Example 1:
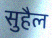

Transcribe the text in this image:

सुहैल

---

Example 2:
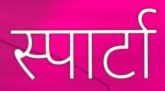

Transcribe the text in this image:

स्पार्टा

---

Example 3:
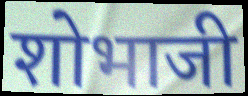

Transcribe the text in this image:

शोभाजी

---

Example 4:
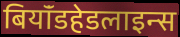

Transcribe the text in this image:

बियॉंडहेडलाइन्स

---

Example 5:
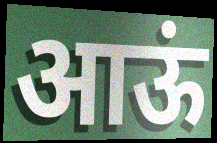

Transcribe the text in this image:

आऊं